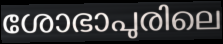
ശോഭാപുരിലെ